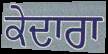
ਕੇਦਾਰਾ